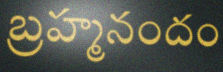
బ్రహ్మనందం